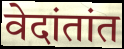
वेदांतांत